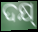
ଦକ୍ଷ୍